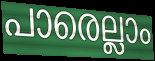
പാരെല്ലാം